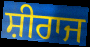
ਸ਼ੀਰਾਜ